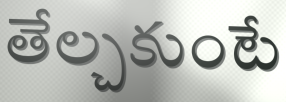
తేల్చకుంటే